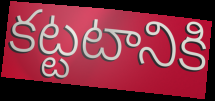
కట్టటానికి